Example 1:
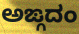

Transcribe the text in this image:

ಅಙ್ಗದಂ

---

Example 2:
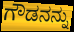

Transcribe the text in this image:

ಗೌಡನನ್ನು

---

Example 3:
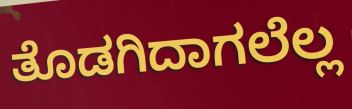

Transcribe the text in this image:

ತೊಡಗಿದಾಗಲೆಲ್ಲ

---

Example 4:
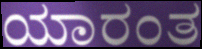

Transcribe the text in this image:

ಯಾರಂತ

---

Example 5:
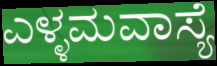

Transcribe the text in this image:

ಎಳ್ಳಮವಾಸ್ಯೆ